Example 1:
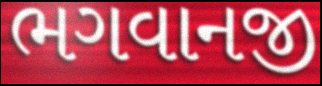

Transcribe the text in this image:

ભગવાનજી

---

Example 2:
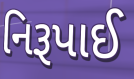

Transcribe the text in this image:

નિરૂપાઈ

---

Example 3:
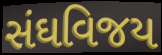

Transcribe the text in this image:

સંઘવિજય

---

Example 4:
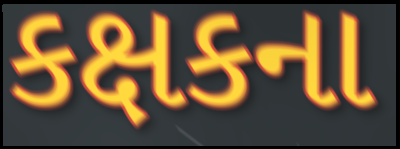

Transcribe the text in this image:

કક્ષકના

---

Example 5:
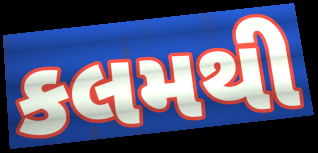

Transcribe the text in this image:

કલમથી